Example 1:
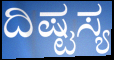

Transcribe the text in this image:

ದಿಷ್ಟಸ್ಯ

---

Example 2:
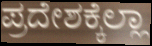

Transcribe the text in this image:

ಪ್ರದೇಶಕ್ಕೆಲ್ಲಾ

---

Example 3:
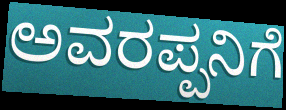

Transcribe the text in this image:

ಅವರಪ್ಪನಿಗೆ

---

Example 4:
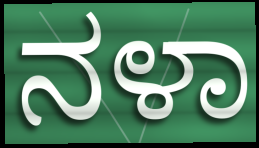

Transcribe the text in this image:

ನಳಾ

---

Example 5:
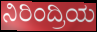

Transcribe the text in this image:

ನಿರಿಂದ್ರಿಯ